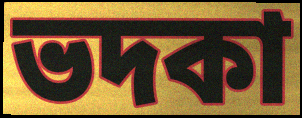
ভদকা